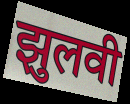
झुलवी